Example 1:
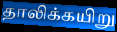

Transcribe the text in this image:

தாலிக்கயிறு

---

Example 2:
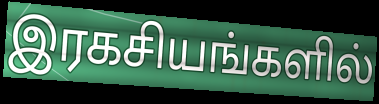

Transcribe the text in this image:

இரகசியங்களில்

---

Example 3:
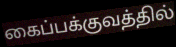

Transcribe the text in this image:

கைப்பக்குவத்தில்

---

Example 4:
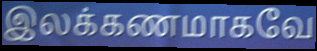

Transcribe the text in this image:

இலக்கணமாகவே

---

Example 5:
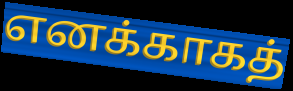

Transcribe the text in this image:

எனக்காகத்